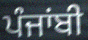
ਪੰਜਾਂਬੀ